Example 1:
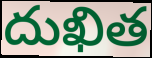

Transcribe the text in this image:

దుఖిత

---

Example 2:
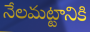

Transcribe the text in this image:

నేలమట్టానికి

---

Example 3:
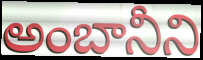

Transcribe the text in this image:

అంబానీని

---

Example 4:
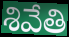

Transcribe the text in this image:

శివేతి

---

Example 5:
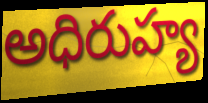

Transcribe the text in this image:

అధిరుహ్య